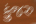
કુંજરુ